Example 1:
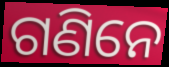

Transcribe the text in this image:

ଗଣିନେ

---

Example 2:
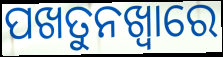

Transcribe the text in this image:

ପଖତୁନଖ୍ୱାରେ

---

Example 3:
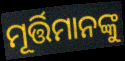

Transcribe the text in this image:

ମୂର୍ତ୍ତିମାନଙ୍କୁ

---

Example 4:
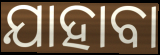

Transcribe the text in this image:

ଯାହାବା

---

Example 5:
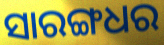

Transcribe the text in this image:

ସାରଙ୍ଗଧର